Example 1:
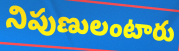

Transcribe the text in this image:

నిపుణులంటారు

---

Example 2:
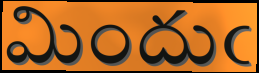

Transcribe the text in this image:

మిందుఁ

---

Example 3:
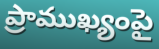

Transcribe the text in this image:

ప్రాముఖ్యంపై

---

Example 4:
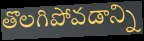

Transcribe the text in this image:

తొలగిపోవడాన్ని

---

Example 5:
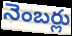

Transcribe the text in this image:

నెంబర్లు